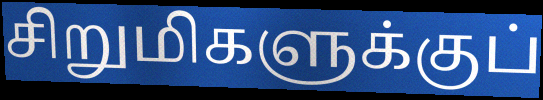
சிறுமிகளுக்குப்